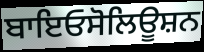
ਬਾਇਓਸੋਲਿਊਸ਼ਨ